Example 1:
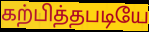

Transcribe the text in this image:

கற்பித்தபடியே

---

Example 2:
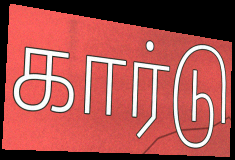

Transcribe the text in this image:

கார்டு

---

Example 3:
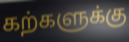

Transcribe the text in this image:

கற்களுக்கு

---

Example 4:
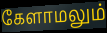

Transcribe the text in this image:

கேளாமலும்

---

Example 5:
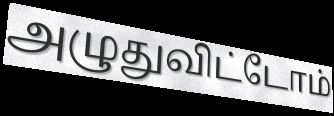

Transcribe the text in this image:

அழுதுவிட்டோம்